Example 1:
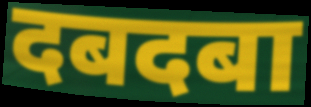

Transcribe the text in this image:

दबदबा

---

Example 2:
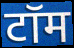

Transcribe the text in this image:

टॉम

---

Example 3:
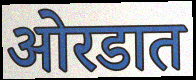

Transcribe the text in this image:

ओरडात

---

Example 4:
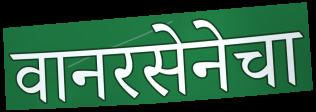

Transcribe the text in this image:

वानरसेनेचा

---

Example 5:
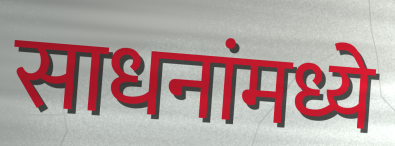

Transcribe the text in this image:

साधनांमध्ये